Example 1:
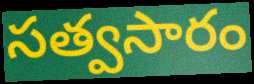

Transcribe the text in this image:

సత్వసారం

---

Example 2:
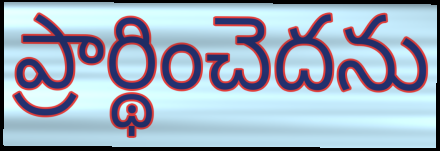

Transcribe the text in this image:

ప్రార్థించెదను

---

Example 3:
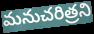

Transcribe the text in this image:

మనుచరిత్రని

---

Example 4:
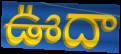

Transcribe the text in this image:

ఊదా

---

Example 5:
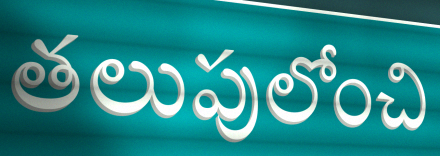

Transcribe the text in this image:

తలుపులోంచి